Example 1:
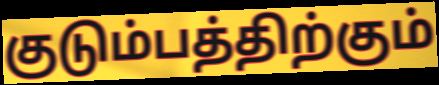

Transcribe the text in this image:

குடும்பத்திற்கும்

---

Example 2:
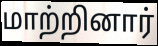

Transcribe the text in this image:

மாற்றினார்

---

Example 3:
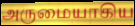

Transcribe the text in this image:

அருமையாகிய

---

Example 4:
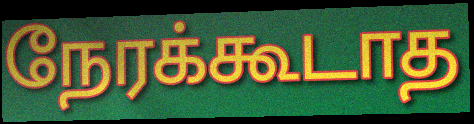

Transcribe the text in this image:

நேரக்கூடாத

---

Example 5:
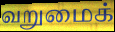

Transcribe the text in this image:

வறுமைக்